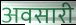
अवसारी